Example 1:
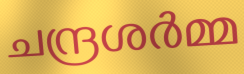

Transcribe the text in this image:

ചന്ദ്രശർമ്മ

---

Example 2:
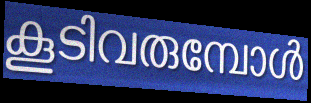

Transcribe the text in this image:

കൂടിവരുമ്പോൾ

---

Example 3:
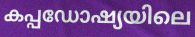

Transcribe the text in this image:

കപ്പഡോഷ്യയിലെ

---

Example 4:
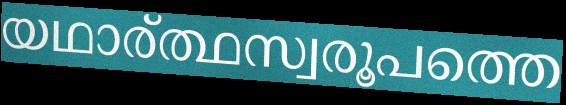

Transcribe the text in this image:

യഥാര്ത്ഥസ്വരൂപത്തെ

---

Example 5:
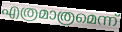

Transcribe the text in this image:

എത്രമാത്രമെന്ന്